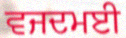
ਵਜਦਮਈ